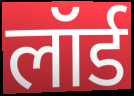
लॉर्ड